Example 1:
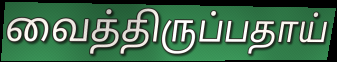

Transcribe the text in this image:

வைத்திருப்பதாய்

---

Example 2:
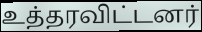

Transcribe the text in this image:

உத்தரவிட்டனர்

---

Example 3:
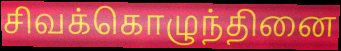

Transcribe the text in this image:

சிவக்கொழுந்தினை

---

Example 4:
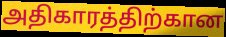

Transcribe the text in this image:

அதிகாரத்திற்கான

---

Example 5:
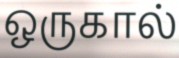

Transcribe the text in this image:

ஒருகால்